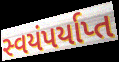
સ્વયંપર્યાપ્ત